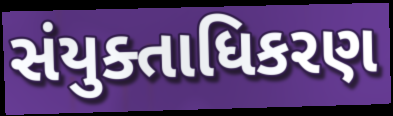
સંયુક્તાધિકરણ